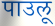
पाउलू